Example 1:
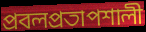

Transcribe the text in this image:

প্রবলপ্রতাপশালী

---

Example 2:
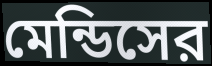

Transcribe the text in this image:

মেন্ডিসের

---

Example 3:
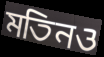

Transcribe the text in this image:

মতিনও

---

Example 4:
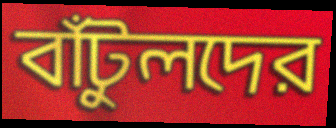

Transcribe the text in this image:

বাঁটুলদের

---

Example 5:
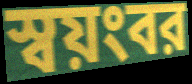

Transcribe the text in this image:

স্বয়ংবর